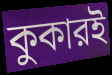
কুকারই